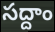
సద్దాం